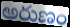
అరుణం